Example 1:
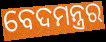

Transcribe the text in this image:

ବେଦମନ୍ତ୍ରର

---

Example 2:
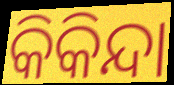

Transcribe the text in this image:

କିକିନ୍ଦା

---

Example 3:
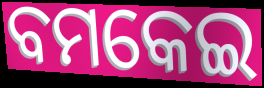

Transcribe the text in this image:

ବମକେଇ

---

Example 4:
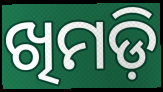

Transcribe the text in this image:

ଖିମଡ଼ି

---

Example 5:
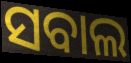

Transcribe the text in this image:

ସବାଲ